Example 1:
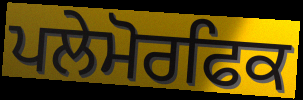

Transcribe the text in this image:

ਪਲੇਮੋਰਫਿਕ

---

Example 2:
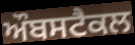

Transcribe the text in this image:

ਔਬਸਟੈਕਲ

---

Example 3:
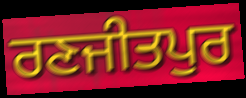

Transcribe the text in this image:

ਰਣਜੀਤਪੁਰ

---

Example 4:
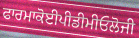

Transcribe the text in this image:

ਫਾਰਮਾਕੋਈਪੀਡੀਮੀਓਲੋਜੀ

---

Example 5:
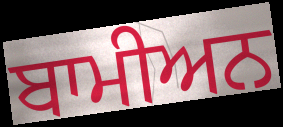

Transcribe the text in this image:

ਬਾਮੀਅਨ